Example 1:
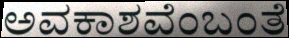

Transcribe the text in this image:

ಅವಕಾಶವೆಂಬಂತೆ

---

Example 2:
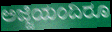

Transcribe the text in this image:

ಅಜ್ಜಿಯಂದಿರೂ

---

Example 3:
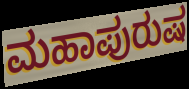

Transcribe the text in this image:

ಮಹಾಪುರುಷ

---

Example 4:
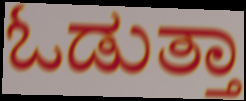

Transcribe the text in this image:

ಓಡುತ್ತಾ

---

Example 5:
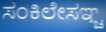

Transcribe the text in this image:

ಸಂಕಿಲೇಸಞ್ಚ